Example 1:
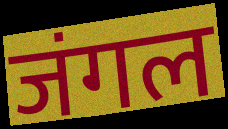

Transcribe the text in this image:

जंगल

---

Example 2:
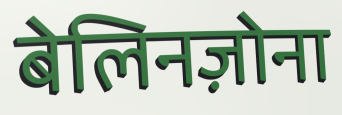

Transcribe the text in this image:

बेलिनज़ोना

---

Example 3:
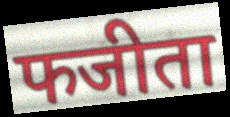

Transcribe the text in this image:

फजीता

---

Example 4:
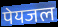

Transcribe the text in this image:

पेयजल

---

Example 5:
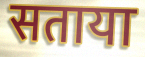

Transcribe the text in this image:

सताया